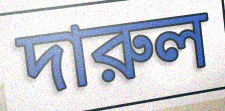
দারুল